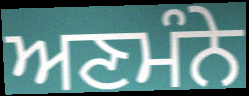
ਅਣਮੰਨੇ